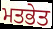
ਮਤਭੇਤ